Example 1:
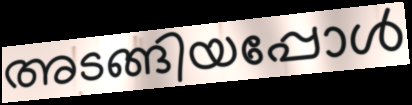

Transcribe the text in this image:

അടങ്ങിയപ്പോൾ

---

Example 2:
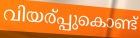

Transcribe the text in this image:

വിയര്പ്പുകൊണ്ട്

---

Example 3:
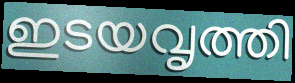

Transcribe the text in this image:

ഇടയവൃത്തി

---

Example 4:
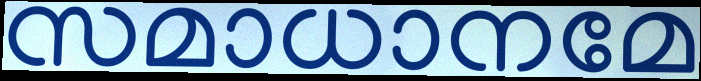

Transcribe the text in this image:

സമാധാനമേ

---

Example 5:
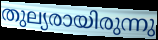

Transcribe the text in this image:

തുല്യരായിരുന്നു